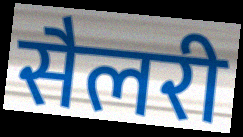
सैलरी